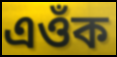
এওঁক